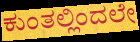
ಕುಂತಲ್ಲಿಂದಲೇ